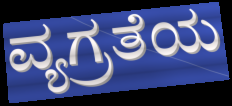
ವ್ಯಗ್ರತೆಯ